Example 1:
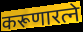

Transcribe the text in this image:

करूणारत्ने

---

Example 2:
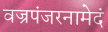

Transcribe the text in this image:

वज्रपंजरनामेदं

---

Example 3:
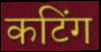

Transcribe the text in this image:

कटिंग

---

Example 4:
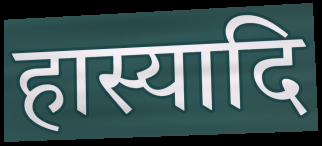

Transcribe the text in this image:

हास्यादि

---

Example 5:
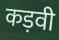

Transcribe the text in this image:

कड़वी